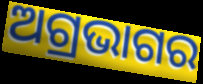
ଅଗ୍ରଭାଗର